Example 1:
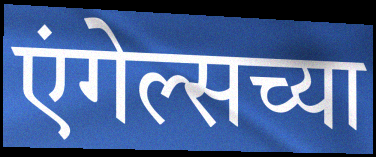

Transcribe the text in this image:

एंगेल्सच्या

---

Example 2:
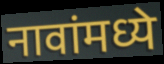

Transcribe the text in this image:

नावांमध्ये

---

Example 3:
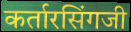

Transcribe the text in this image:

कर्तारसिंगजी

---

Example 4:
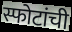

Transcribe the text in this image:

स्फोटांची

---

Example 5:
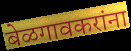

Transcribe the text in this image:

बेळगावकरांना